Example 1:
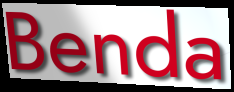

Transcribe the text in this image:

Benda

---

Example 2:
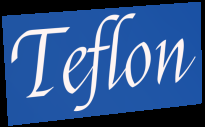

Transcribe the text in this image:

Teflon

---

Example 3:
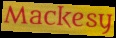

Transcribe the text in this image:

Mackesy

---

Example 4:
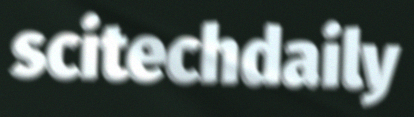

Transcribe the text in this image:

scitechdaily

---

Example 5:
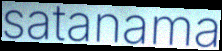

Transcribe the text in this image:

satanama